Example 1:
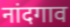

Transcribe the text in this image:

नांदगाव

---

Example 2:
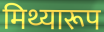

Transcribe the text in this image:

मिथ्यारूप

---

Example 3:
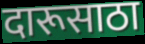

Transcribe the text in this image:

दारूसाठा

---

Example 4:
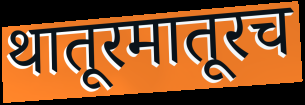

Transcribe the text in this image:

थातूरमातूरच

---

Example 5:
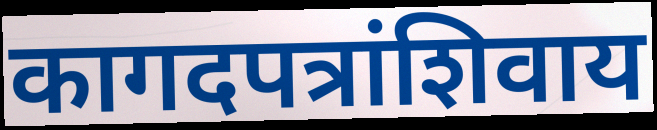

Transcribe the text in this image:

कागदपत्रांशिवाय